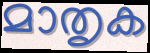
മാതൃക